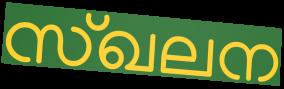
സ്ഖലന